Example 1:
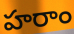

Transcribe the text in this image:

హరాం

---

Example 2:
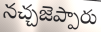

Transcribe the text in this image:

నచ్చజెప్పారు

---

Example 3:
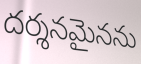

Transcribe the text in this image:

దర్శనమైనను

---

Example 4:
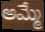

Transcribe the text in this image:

అమ్మే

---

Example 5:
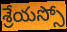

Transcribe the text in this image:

శ్రేయస్సో